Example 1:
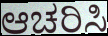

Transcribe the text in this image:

ಆಚರಿಸಿ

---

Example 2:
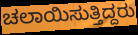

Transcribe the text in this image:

ಚಲಾಯಿಸುತ್ತಿದ್ದರು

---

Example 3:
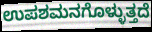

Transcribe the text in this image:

ಉಪಶಮನಗೊಳ್ಳುತ್ತದೆ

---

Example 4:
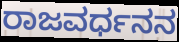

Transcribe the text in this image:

ರಾಜವರ್ಧನನ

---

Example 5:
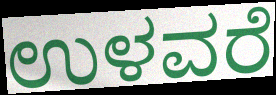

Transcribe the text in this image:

ಉಳವರೆ